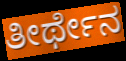
ತೀರ್ಥೇನ